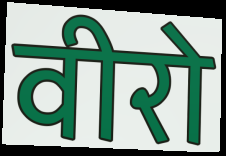
वीरो